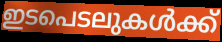
ഇടപെടലുകൾക്ക്